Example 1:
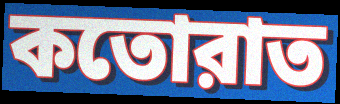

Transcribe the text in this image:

কতোরাত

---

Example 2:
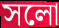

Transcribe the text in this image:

সলো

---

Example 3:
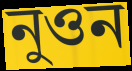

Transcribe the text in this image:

নুওন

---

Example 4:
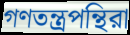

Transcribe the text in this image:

গণতন্ত্রপন্থিরা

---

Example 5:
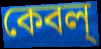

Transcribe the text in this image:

কেবল্